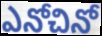
ఎనోచినో